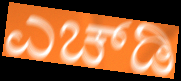
ಎಚ್‍ಡಿ